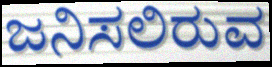
ಜನಿಸಲಿರುವ